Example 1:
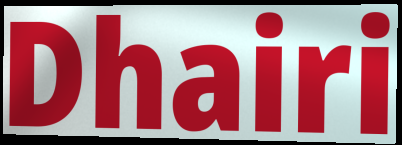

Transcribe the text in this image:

Dhairi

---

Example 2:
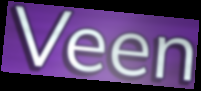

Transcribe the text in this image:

Veen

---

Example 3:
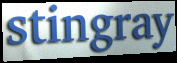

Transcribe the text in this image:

stingray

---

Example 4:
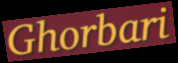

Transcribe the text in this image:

Ghorbari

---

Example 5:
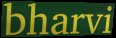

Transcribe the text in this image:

bharvi